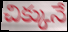
చిక్కునే